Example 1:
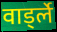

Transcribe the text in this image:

वार्ड्ले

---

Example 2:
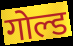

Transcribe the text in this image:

गोल्‍ड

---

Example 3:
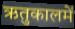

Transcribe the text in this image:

ऋतुकालमें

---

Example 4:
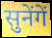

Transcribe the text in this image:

सुनेंगें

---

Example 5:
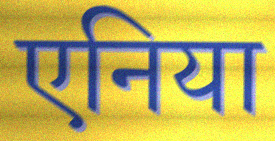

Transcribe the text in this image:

एनिया